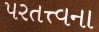
પરતત્ત્વના